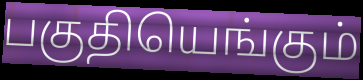
பகுதியெங்கும்